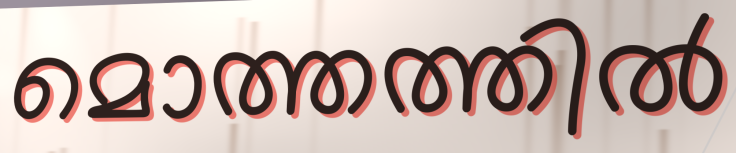
മൊത്തത്തിൽ